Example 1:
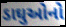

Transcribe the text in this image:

ડાઘુઓનો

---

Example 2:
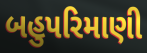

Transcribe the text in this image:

બહુપરિમાણી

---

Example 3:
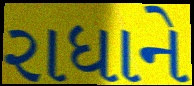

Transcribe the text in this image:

રાધાને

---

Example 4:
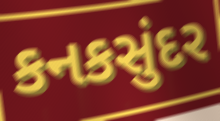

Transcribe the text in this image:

કનકસુંદર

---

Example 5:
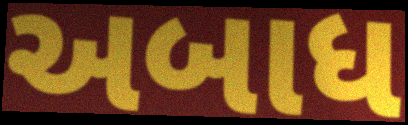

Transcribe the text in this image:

અબાધ